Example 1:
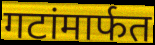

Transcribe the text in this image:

गटांमार्फत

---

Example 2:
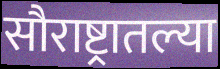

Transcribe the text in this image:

सौराष्ट्रातल्या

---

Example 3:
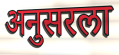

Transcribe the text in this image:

अनुसरला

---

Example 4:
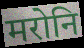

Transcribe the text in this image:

मरोनि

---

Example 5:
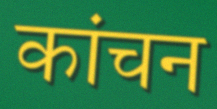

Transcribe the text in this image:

कांचन